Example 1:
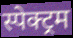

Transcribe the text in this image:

स्पेक्ट्रम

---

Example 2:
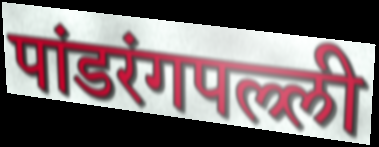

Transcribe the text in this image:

पांडरंगपल्ली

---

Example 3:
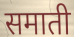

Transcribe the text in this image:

समाती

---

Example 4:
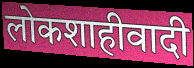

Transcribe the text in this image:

लोकशाहीवादी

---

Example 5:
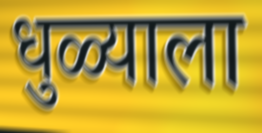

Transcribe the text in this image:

धुळ्याला